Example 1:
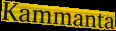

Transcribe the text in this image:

Kammanta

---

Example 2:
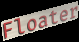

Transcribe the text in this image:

Floater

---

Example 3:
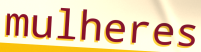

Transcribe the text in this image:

mulheres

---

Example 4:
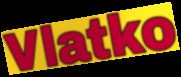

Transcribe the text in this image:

Vlatko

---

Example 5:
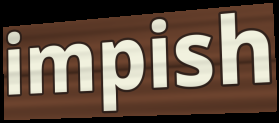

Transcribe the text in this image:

impish